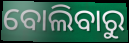
ବୋଲିବାରୁ